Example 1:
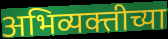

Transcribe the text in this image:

अभिव्यक्तीच्या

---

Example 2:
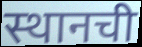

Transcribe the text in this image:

स्थानची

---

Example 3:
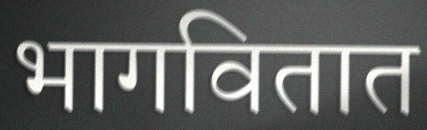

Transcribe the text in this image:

भागवितात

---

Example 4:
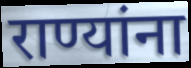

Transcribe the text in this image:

राण्यांना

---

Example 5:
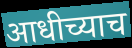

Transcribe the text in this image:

आधीच्याच